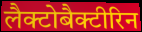
लैक्टोबैक्टीरिन